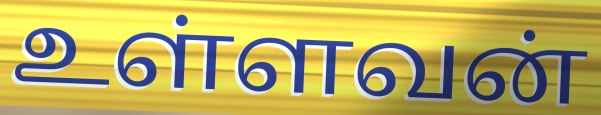
உள்ளவன்